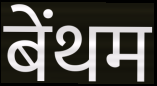
बेंथम